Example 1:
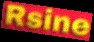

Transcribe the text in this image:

Rsine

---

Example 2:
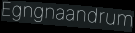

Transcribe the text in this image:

Egngnaandrum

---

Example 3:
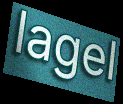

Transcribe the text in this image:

lagel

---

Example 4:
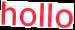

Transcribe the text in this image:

hollo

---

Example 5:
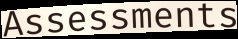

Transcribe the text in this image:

Assessments